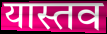
यास्तव